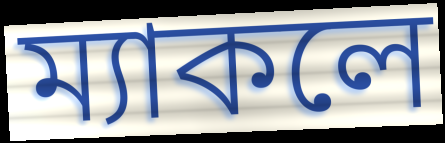
ম্যাকলে